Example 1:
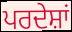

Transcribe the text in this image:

ਪਰਦੇਸ਼ਾਂ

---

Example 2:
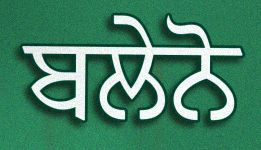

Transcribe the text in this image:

ਬਲੇਨੋ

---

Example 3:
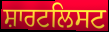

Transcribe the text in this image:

ਸ਼ਾਰਟਲਿਸਟ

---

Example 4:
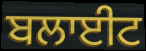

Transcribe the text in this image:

ਬਲਾਈਟ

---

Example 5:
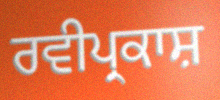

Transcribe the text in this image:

ਰਵੀਪ੍ਰਕਾਸ਼